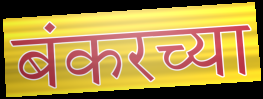
बंकरच्या